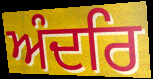
ਅੰਦਰਿ